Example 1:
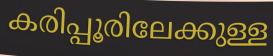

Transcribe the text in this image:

കരിപ്പൂരിലേക്കുള്ള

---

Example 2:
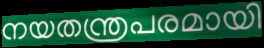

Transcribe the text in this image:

നയതന്ത്രപരമായി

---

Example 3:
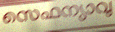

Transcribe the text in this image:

സെഫന്യാവു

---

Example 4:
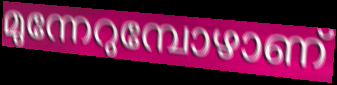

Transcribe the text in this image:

മുന്നേറുമ്പോഴാണ്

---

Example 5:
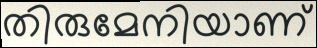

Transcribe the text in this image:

തിരുമേനിയാണ്